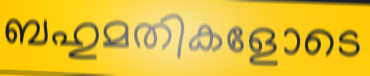
ബഹുമതികളോടെ